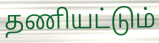
தணியட்டும்